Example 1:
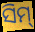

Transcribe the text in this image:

ସିମ୍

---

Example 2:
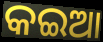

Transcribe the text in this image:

କଇଆ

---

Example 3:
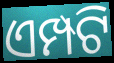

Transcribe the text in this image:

ଏମ୍ପଟି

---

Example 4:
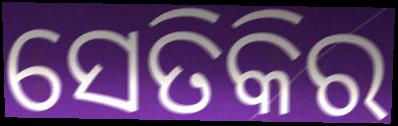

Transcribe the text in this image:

ସେତିକିର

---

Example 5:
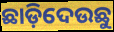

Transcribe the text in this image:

ଛାଡ଼ିଦେଉଛୁ